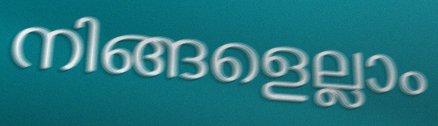
നിങ്ങളെല്ലാം